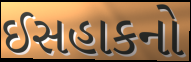
ઈસહાકનો